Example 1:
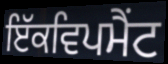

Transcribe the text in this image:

ਇੱਕਵਿਪਮੈਂਟ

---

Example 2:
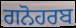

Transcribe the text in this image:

ਗਨੋਹਰਬ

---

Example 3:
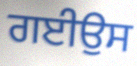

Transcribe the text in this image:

ਗਈਉਸ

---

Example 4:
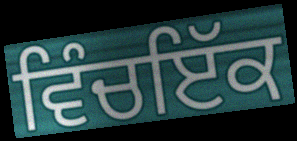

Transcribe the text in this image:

ਵਿੰਚਇੱਕ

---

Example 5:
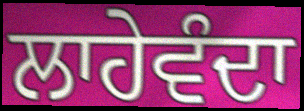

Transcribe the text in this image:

ਲਾਹੇਵੰਦਾ